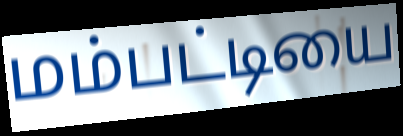
மம்பட்டியை